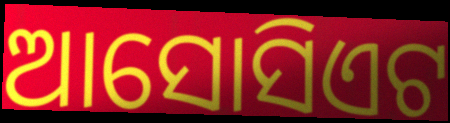
ଆସୋସିଏଟ